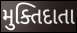
મુક્તિદાતા